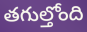
తగుల్తోంది